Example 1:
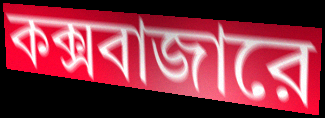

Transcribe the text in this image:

কক্সবাজারে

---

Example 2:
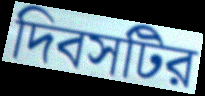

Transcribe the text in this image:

দিবসটির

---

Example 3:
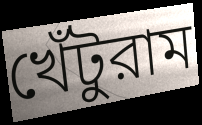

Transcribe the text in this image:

খেঁটুরাম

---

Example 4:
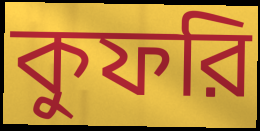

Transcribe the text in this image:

কুফরি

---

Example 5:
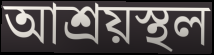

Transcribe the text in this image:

আশ্রয়স্থল